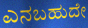
ಎನಬಹುದೇ